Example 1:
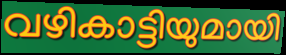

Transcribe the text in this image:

വഴികാട്ടിയുമായി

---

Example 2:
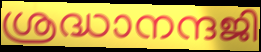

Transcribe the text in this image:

ശ്രദ്ധാനന്ദജി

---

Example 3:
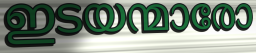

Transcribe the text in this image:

ഇടയന്മാരോ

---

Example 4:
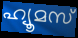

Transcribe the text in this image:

ഹ്യൂമസ്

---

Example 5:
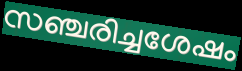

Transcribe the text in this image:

സഞ്ചരിച്ചശേഷം